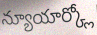
న్యూయార్క్లో